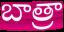
బాత్రా